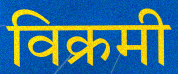
विक्रमी